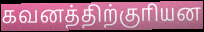
கவனத்திற்குரியன